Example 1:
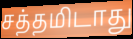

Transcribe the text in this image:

சத்தமிடாது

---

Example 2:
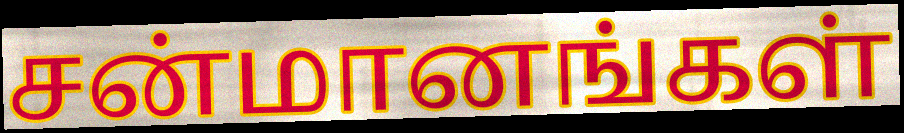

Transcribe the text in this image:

சன்மானங்கள்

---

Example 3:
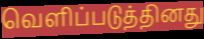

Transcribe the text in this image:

வெளிப்படுத்தினது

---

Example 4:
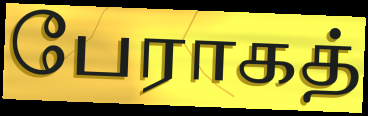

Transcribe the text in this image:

பேராகத்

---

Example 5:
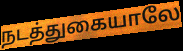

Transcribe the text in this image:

நடத்துகையாலே